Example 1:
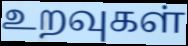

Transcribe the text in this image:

உறவுகள்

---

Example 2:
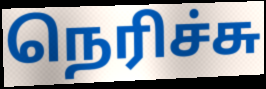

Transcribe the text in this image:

நெரிச்சு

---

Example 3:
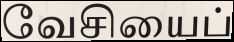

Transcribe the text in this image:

வேசியைப்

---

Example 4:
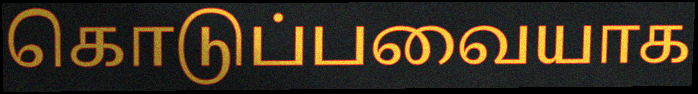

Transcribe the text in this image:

கொடுப்பவையாக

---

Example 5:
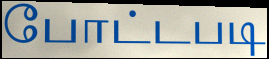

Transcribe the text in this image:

போட்டபடி